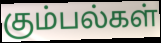
கும்பல்கள்